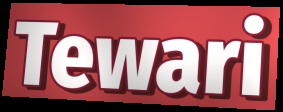
Tewari